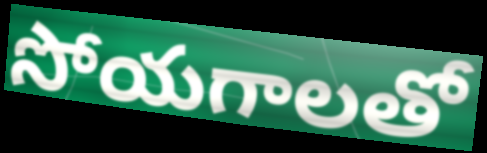
సోయగాలతో